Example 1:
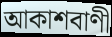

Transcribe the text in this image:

আকাশবাণী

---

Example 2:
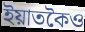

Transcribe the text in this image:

ইয়াতকৈও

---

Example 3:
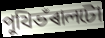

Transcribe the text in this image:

পুথিভঁৰালটো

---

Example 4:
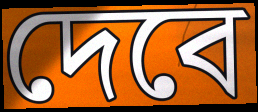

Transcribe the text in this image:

দেবে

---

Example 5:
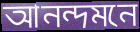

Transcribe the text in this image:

আনন্দমনে